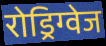
रोड्रिग्वेज